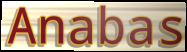
Anabas